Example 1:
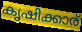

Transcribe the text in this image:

കൃഷിക്കാര്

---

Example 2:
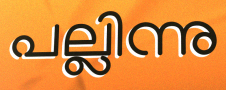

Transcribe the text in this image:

പല്ലിന്നു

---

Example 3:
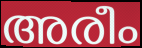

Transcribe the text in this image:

അരീം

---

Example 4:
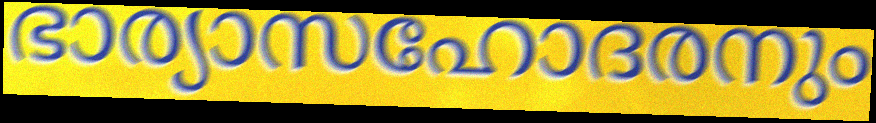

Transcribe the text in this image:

ഭാര്യാസഹോദരനും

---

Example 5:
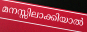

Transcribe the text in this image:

മനസ്സിലാക്കിയാൽ